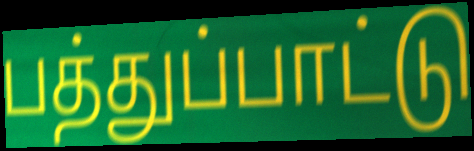
பத்துப்பாட்டு